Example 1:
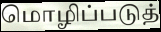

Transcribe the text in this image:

மொழிப்படுத்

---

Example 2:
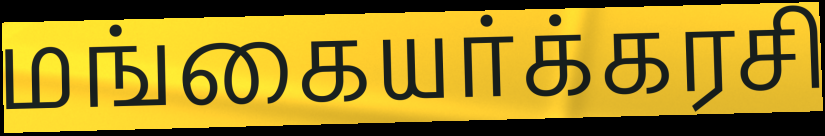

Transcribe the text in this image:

மங்கையர்க்கரசி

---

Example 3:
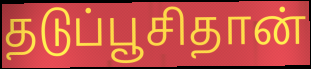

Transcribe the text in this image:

தடுப்பூசிதான்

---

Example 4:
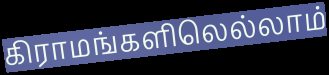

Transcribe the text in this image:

கிராமங்களிலெல்லாம்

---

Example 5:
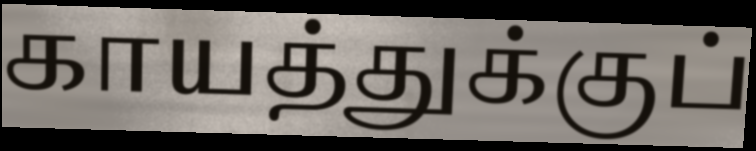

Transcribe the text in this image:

காயத்துக்குப்